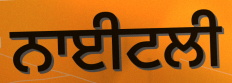
ਨਾਈਟਲੀ